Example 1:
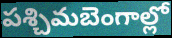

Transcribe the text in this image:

పశ్చిమబెంగాల్లో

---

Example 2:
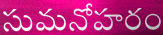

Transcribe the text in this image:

సుమనోహరం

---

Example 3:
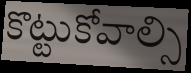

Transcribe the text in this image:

కొట్టుకోవాల్సి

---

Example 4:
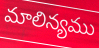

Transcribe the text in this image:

మాలిన్యము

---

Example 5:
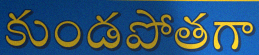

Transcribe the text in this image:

కుండపోతగా